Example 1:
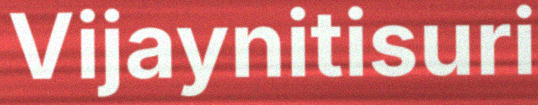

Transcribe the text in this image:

Vijaynitisuri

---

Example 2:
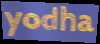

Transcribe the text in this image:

yodha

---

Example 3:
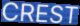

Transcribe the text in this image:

CREST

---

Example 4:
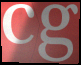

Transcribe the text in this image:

cg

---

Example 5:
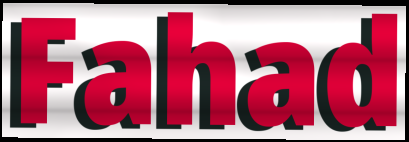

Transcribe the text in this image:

Fahad